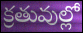
క్రతువుల్లో